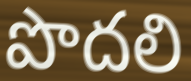
పొదలి